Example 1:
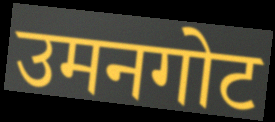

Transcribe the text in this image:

उमनगोट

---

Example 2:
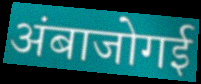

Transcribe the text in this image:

अंबाजोगई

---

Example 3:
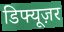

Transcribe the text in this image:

डिफ्यूज़र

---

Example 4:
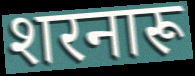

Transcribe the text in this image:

शरनारू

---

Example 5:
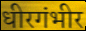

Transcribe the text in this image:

धीरगंभीर